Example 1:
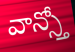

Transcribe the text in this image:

వాన్స్తో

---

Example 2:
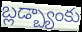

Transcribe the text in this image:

బ్లడ్బ్యాంకు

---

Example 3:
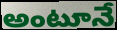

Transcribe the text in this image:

అంటూనే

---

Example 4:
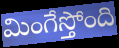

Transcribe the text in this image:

మింగేస్తోంది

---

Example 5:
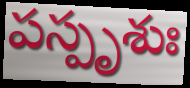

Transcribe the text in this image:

పస్పృశుః